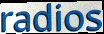
radios